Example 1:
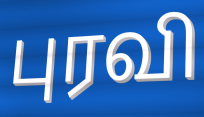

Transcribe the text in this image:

புரவி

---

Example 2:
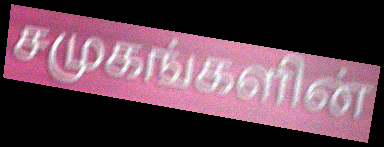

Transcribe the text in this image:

சமுகங்களின்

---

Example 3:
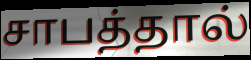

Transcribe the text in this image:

சாபத்தால்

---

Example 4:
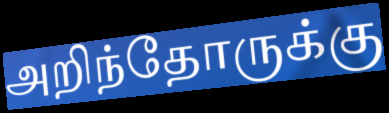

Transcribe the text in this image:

அறிந்தோருக்கு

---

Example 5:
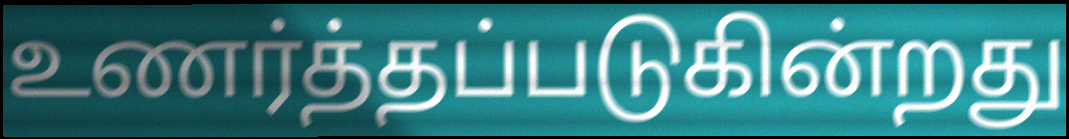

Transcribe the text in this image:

உணர்த்தப்படுகின்றது